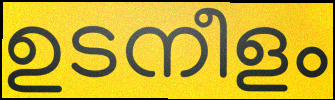
ഉടനീളം